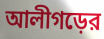
আলীগড়ের